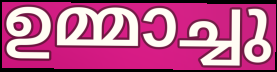
ഉമ്മാച്ചു